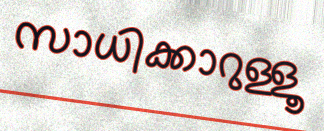
സാധിക്കാറുള്ളൂ